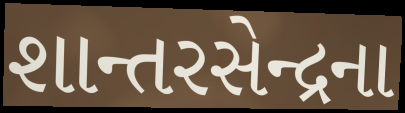
શાન્તરસેન્દ્રના